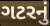
ગટરનું